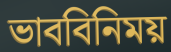
ভাববিনিময়